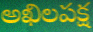
అఖిలపక్ష